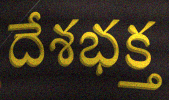
దేశభక్త